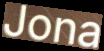
Jona